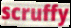
scruffy